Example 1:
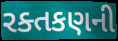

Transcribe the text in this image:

રક્તકણની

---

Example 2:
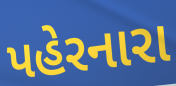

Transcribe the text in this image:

પહેરનારા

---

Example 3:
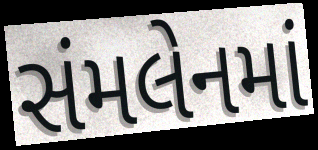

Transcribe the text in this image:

સંમલેનમાં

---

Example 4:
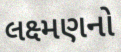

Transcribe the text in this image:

લક્ષ્મણનો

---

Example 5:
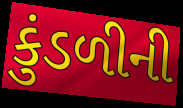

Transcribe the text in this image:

કુંડળીની